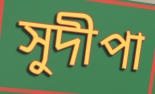
সুদীপা